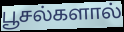
பூசல்களால்